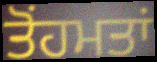
ਤੋਂਹਮਤਾਂ